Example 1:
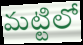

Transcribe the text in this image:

మట్టిలో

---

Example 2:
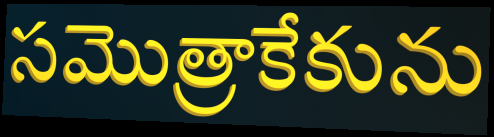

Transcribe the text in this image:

సమొత్రాకేకును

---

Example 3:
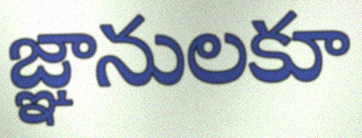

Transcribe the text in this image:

జ్ఞానులకూ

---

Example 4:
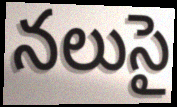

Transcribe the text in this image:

నలుసై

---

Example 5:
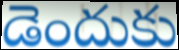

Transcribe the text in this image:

డెందుకు